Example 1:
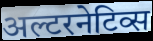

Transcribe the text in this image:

अल्टरनेटिव्स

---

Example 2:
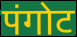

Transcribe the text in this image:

पंगोट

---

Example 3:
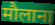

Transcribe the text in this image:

मौलाना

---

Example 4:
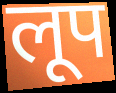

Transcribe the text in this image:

लूप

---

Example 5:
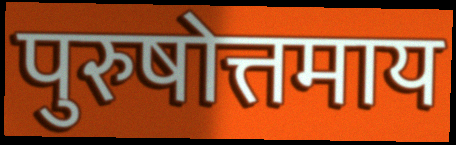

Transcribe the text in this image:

पुरुषोत्तमाय